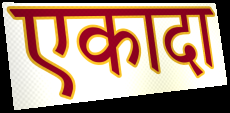
एकादा